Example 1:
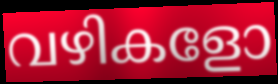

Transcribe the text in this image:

വഴികളോ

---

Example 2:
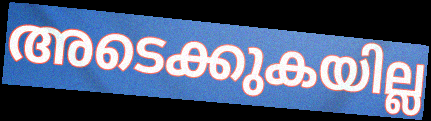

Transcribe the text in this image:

അടെക്കുകയില്ല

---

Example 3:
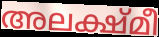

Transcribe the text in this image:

അലക്ഷ്മീ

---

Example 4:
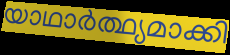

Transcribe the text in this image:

യാഥാർത്ഥ്യമാക്കി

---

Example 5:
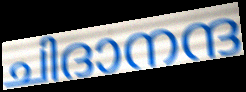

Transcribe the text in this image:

ചിദാനന്ദ